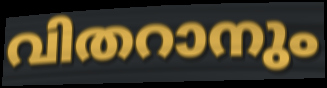
വിതറാനും